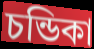
চন্ডিকা